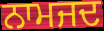
ਨਾਮਜਦ